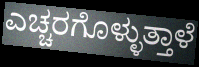
ಎಚ್ಚರಗೊಳ್ಳುತ್ತಾಳೆ